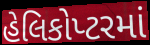
હેલિકોપ્ટરમાં